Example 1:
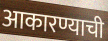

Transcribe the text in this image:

आकारण्याची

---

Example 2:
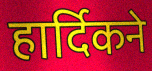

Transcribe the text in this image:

हार्दिकने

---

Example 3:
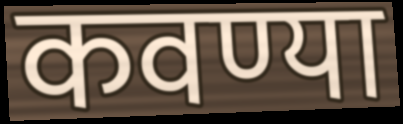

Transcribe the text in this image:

कवण्या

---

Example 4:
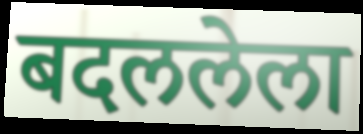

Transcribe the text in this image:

बदललेला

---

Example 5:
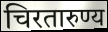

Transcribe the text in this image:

चिरतारुण्य